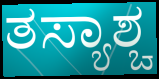
ತಸ್ಯಾಶ್ಚ